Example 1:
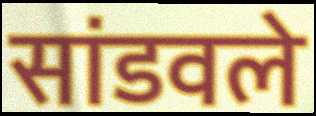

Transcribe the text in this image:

सांडवले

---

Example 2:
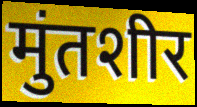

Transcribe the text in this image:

मुंतशीर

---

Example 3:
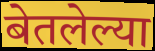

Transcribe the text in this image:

बेतलेल्या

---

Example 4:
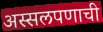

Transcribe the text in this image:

अस्सलपणाची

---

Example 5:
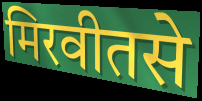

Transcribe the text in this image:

मिरवीतसे